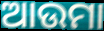
ଆଉମା